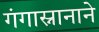
गंगास्नानाने